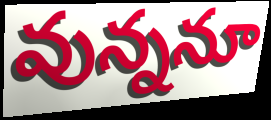
వున్ననూ